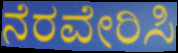
ನೆರವೇರಿಸಿ